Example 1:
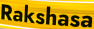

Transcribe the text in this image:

Rakshasa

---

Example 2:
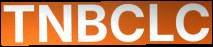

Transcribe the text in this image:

TNBCLC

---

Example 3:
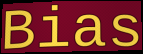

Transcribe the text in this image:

Bias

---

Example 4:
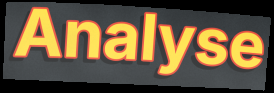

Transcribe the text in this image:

Analyse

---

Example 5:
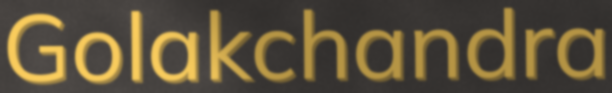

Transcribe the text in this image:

Golakchandra